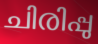
ചിരിപ്പു